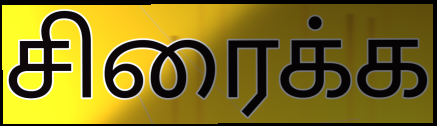
சிரைக்க